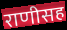
राणीसह